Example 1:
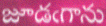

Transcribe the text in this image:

జూడఁగాను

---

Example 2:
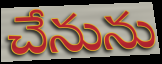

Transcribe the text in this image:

చేనును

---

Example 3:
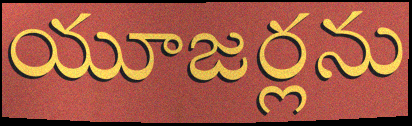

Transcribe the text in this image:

యూజర్లను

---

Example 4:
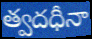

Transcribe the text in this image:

త్వదధీనా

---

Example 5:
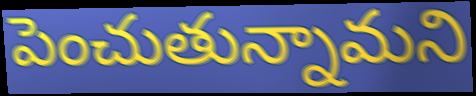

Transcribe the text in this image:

పెంచుతున్నామని